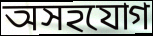
অসহযোগ